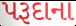
પરૂદાના